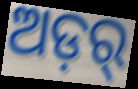
ଅଡ଼ର୍